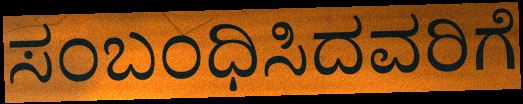
ಸಂಬಂಧಿಸಿದವರಿಗೆ